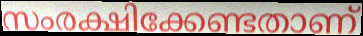
സംരക്ഷിക്കേണ്ടതാണ്